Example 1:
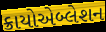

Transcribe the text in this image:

ક્રાયોએબ્લેશન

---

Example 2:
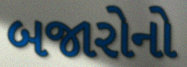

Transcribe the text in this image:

બજારોનો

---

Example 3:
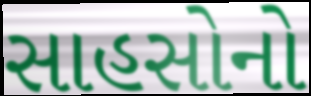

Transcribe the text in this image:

સાહસોનો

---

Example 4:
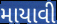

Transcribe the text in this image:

માયાવી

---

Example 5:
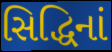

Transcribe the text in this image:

સિદ્ધિનાં